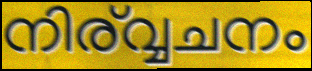
നിര്വ്വചനം